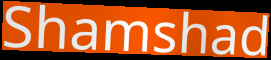
Shamshad